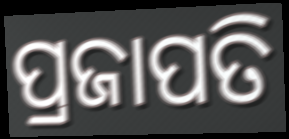
ପ୍ରଜାପତି